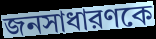
জনসাধারণকে